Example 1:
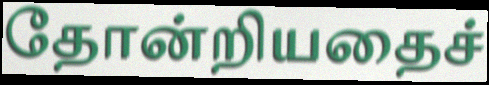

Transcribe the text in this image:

தோன்றியதைச்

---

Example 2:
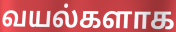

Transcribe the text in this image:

வயல்களாக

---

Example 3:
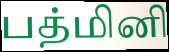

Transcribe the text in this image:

பத்மினி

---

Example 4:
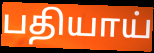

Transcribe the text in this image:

பதியாய்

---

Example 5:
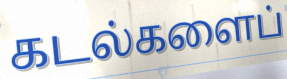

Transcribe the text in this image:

கடல்களைப்